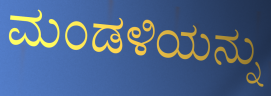
ಮಂಡಳಿಯನ್ನು